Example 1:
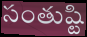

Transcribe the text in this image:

సంతుష్టి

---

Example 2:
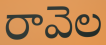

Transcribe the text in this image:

రావెల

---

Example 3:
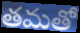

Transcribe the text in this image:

తమతో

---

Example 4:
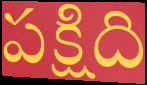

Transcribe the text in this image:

పక్షిది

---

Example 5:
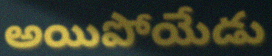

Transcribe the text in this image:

అయిపోయేడు